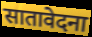
सातावेदना